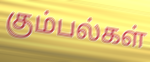
கும்பல்கள்